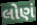
લોણં